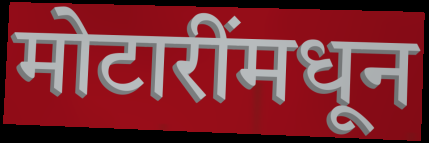
मोटारींमधून